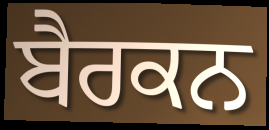
ਬੈਰਕਨ